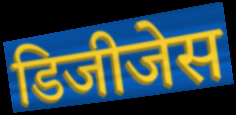
डिजीजेस